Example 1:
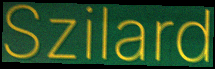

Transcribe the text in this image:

Szilard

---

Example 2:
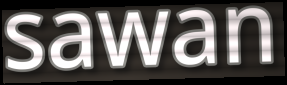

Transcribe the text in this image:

sawan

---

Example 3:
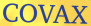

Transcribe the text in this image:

COVAX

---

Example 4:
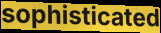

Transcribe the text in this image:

sophisticated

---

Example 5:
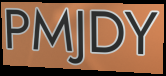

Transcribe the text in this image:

PMJDY